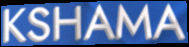
KSHAMA